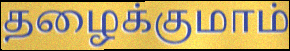
தழைக்குமாம்